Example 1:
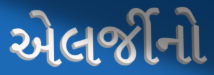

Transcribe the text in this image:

એલર્જીનો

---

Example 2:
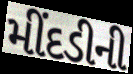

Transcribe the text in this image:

મીંદડીની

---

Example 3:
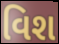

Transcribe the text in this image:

વિશ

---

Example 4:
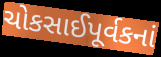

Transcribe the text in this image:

ચોકસાઈપૂર્વકનાં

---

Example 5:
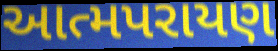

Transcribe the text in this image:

આત્મપરાયણ